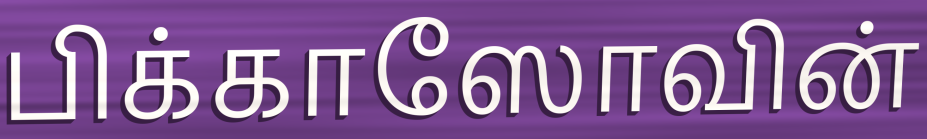
பிக்காஸோவின்